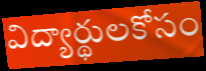
విద్యార్థులకోసం